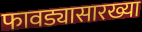
फावड्यासारख्या